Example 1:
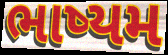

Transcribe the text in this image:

ભાષ્યમ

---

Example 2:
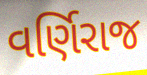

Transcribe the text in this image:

વર્ણિરાજ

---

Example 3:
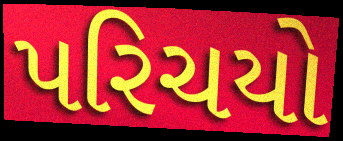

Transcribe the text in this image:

પરિચયો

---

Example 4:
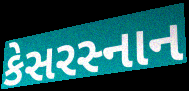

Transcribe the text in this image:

કેસરસ્નાન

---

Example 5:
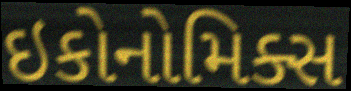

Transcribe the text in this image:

ઇકોનોમિક્સ